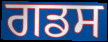
ਗਡਸ